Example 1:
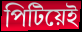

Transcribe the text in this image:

পিটিয়েই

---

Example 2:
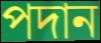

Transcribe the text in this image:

পদান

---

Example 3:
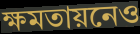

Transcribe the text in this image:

ক্ষমতায়নেও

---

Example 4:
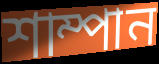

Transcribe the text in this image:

শাম্পান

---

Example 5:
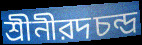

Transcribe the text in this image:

শ্রীনীরদচন্দ্র